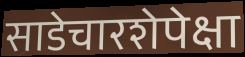
साडेचारशेपेक्षा